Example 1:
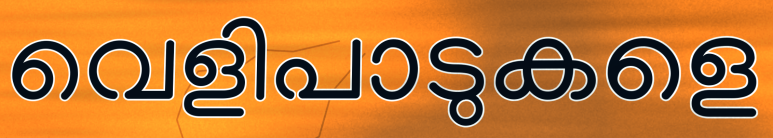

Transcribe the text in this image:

വെളിപാടുകളെ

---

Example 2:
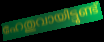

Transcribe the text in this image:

ഹേതുവായിട്ടുണ്ട്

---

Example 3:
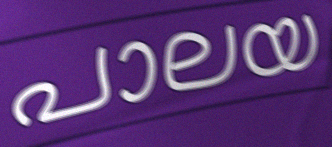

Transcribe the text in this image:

പാലയ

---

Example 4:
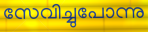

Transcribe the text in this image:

സേവിച്ചുപോന്നു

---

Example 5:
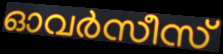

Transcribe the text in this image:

ഓവർസീസ്